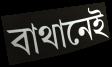
বাথানেই